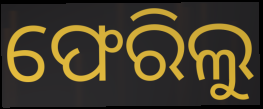
ଫେରିଲୁ